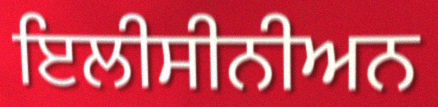
ਇਲੀਸੀਨੀਅਨ